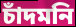
চাঁদমনি